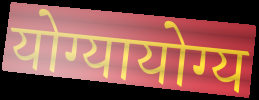
योग्यायोग्य